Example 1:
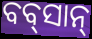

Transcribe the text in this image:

ବବ୍‌ସାନ୍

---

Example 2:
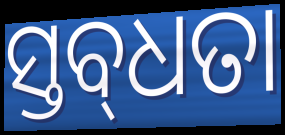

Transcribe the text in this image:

ସ୍ତବ୍‍ଧତା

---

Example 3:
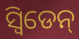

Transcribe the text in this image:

ସ୍ଵିଡେନ୍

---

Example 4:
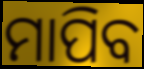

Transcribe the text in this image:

ମାପିବ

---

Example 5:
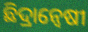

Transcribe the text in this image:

ଛିଦ୍ରାନ୍ୱେଷୀ